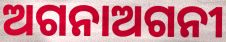
ଅଗନାଅଗନୀ